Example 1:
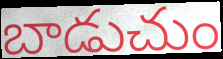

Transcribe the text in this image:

బాడుచుం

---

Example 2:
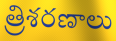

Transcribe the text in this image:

త్రిశరణాలు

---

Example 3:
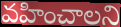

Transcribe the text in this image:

వహించాలని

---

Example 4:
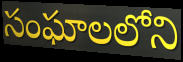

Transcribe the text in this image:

సంఘాలలోని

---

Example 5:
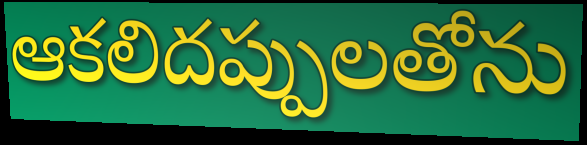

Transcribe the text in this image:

ఆకలిదప్పులతోను